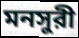
মনসুরী